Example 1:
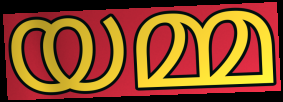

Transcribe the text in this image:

യമ്മ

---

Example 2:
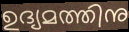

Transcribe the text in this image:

ഉദ്യമത്തിനു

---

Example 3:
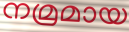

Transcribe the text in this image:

നമ്രമായ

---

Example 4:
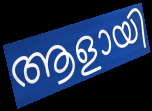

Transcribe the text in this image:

ആളായി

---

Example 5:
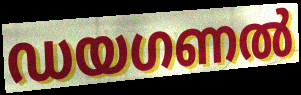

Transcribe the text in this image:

ഡയഗണൽ